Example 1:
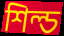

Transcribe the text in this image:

শিল্ড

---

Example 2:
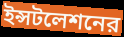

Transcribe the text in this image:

ইন্সটলেশনের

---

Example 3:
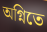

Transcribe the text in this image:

অগ্নিতে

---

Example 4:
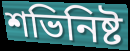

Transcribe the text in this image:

শভিনিষ্ট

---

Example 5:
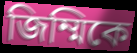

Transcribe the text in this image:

জিম্মিকে